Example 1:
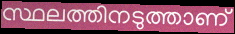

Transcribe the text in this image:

സ്ഥലത്തിനടുത്താണ്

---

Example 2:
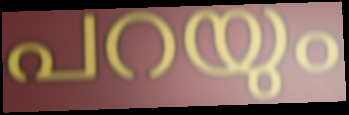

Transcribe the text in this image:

പറയും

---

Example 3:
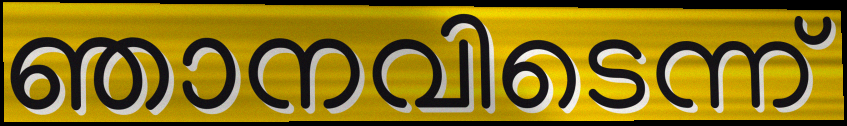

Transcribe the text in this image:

ഞാനവിടെന്ന്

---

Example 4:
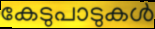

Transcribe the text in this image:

കേടുപാടുകൾ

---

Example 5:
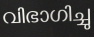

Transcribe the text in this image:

വിഭാഗിച്ചു